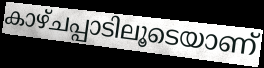
കാഴ്ചപ്പാടിലൂടെയാണ്